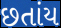
છતાંય